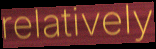
relatively